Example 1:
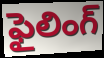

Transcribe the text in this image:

ఫైలింగ్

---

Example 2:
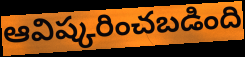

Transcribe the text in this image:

ఆవిష్కరించబడింది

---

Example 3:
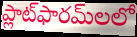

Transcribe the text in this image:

ప్లాట్‌ఫారమ్‌లలో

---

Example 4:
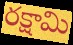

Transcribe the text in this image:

రక్షామి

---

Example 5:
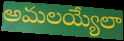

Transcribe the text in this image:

అమలయ్యేలా